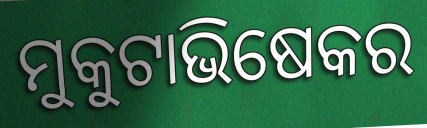
ମୁକୁଟାଭିଷେକର